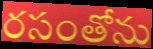
రసంతోను